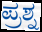
ಪ್ರಶ್ನ